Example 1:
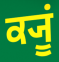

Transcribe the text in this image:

ਕ੍ਯੂਂ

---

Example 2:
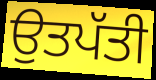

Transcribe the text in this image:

ਉਤਪੱਤੀ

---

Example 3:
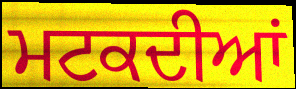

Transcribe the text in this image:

ਮਟਕਦੀਆਂ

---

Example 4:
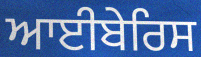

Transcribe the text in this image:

ਆਈਬੇਰਿਸ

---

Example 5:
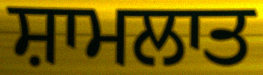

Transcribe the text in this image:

ਸ਼ਾਮਲਾਤ